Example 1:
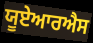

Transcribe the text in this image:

ਯੂਏਆਰਐਸ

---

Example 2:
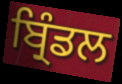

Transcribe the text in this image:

ਬ੍ਰਿੰਡਲ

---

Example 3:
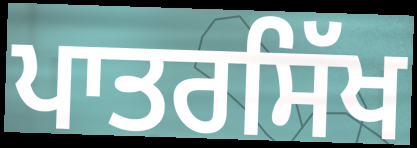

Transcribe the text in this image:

ਪਾਤਰਸਿੱਖ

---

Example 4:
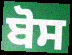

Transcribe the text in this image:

ਬੋਸ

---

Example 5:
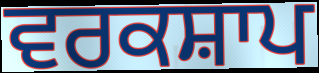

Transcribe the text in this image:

ਵਰਕਸ਼ਾਪ